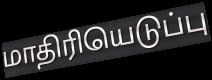
மாதிரியெடுப்பு